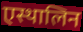
एस्थालिन